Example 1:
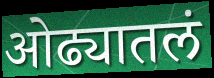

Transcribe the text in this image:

ओढ्यातलं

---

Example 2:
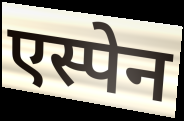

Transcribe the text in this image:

एस्पेन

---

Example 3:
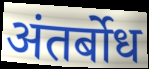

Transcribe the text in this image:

अंतर्बोध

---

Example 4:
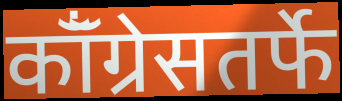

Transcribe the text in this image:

कॉँग्रेसतर्फे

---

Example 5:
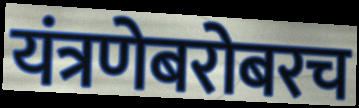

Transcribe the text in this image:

यंत्रणेबरोबरच